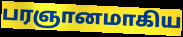
பரஞானமாகிய